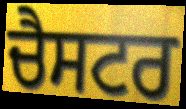
ਚੈਸਟਰ